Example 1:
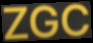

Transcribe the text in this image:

ZGC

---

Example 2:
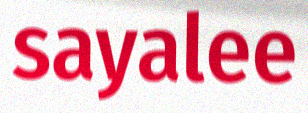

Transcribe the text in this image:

sayalee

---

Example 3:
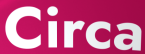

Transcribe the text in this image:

Circa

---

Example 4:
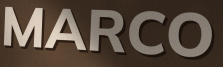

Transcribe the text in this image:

MARCO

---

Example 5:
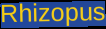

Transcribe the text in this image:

Rhizopus